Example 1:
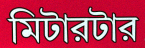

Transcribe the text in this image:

মিটারটার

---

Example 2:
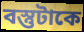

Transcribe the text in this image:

বস্তুটাকে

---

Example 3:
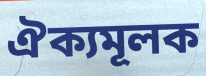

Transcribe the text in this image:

ঐক্যমূলক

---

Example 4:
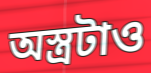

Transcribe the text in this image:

অস্ত্রটাও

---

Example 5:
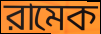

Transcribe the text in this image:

রামেক